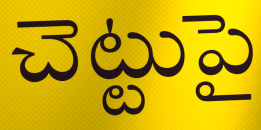
చెట్టుపై